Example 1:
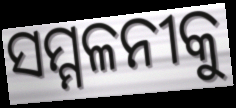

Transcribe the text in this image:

ସମ୍ମଳନୀକୁ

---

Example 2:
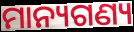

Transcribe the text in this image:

ମାନ୍ୟଗଣ୍ୟ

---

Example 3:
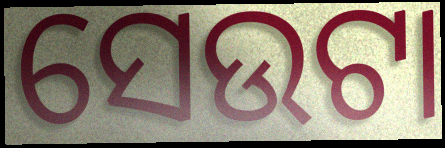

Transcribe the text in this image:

ସେଉଟା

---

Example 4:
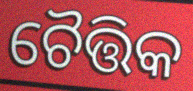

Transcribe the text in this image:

ଚୈତ୍ତିକ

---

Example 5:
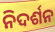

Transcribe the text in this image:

ନିଦର୍ଶନ